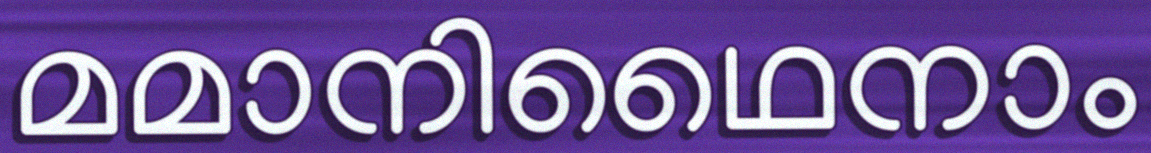
മമാനിഥൈനാം